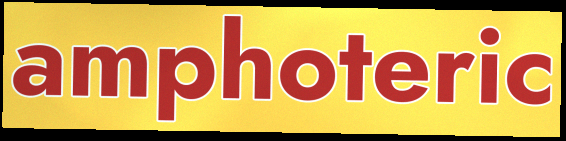
amphoteric